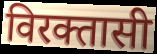
विरक्तासी